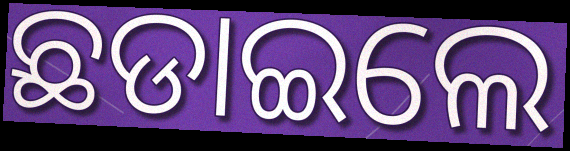
ଛଡାଇଲେ